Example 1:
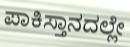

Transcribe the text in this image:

ಪಾಕಿಸ್ತಾನದಲ್ಲೇ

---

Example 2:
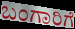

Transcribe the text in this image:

ಬಂಗಾರಿಗೆ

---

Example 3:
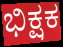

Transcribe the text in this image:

ಭಿಕ್ಷಕ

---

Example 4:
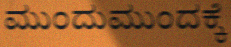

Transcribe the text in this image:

ಮುಂದುಮುಂದಕ್ಕೆ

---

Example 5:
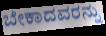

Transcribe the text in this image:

ಬೇಕಾದವರನ್ನು